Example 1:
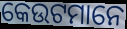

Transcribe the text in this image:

କେଉଟମାନେ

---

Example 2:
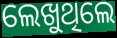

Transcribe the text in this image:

ଲେଖୁଥିଲେ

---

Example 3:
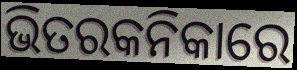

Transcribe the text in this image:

ଭିତରକନିକାରେ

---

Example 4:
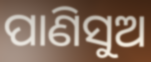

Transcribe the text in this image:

ପାଣିସୁଅ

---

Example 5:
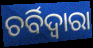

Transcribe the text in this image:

ଚର୍ବିଦ୍ଵାରା